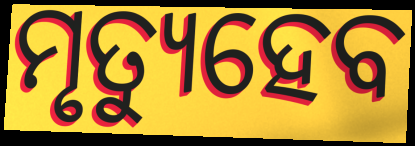
ମୃତ୍ୟୁହେବ